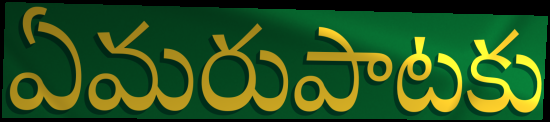
ఏమరుపాటకు